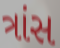
ત્રાંસ